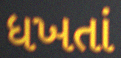
ધખતાં